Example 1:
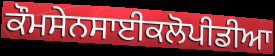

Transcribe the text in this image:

ਕੌਮਸੇਨਸਾਈਕਲੋਪੀਡੀਆ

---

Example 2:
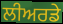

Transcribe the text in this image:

ਲੀਅਰਡੇ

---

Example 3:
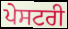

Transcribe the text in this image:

ਪੇਸਟਰੀ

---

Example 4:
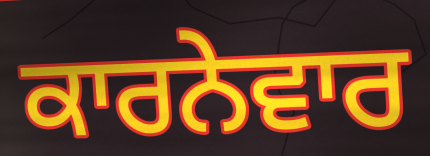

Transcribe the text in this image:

ਕਾਰਨੇਵਾਰ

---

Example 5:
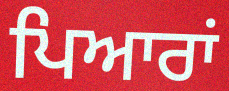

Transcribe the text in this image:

ਪਿਆਰਾਂ